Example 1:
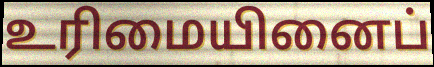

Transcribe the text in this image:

உரிமையினைப்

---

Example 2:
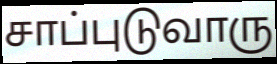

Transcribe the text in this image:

சாப்புடுவாரு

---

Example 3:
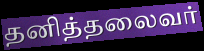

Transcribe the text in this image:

தனித்தலைவர்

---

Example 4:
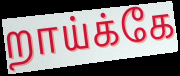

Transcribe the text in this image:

றாய்க்கே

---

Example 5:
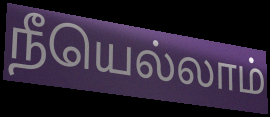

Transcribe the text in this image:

நீயெல்லாம்